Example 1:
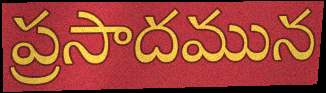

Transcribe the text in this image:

ప్రసాదమున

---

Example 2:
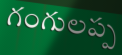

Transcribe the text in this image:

గంగులప్ప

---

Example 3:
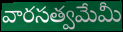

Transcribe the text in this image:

వారసత్వమేమీ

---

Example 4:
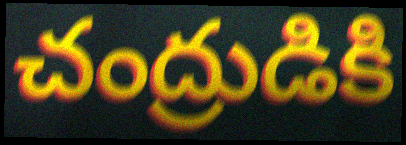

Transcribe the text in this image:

చంద్రుడికి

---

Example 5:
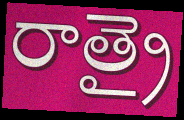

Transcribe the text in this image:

రాత్రై